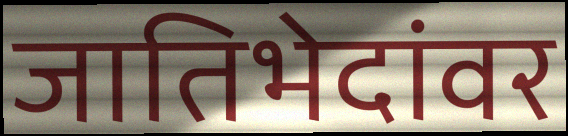
जातिभेदांवर